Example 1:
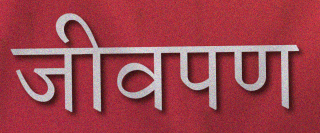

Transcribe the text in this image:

जीवपण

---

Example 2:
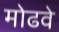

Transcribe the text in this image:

मोढवे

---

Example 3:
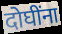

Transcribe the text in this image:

दोघींना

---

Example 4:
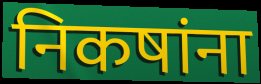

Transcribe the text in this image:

निकषांना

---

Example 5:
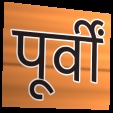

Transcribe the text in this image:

पूर्वीं